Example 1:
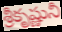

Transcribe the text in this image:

శ్రీకృష్ణునీ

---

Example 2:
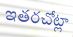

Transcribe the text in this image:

ఇతరచోట్లా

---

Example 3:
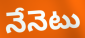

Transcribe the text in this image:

నేనెటు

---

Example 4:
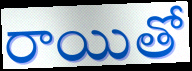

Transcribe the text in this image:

రాయితో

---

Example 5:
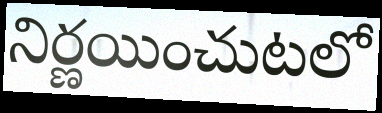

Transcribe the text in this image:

నిర్ణయించుటలో